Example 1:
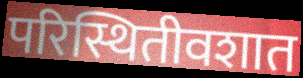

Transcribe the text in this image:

परिस्थितीवशात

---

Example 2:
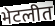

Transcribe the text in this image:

भेटलीत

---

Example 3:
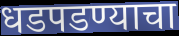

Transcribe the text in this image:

धडपडण्याचा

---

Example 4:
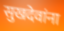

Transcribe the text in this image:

सुखदेवांना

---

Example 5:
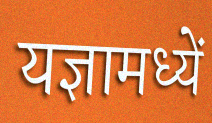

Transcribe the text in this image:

यज्ञामध्यें